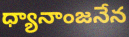
ధ్యానాంజనేన